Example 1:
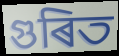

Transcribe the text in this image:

গুৰিত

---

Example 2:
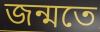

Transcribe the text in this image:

জন্মতে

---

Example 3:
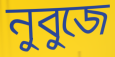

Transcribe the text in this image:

নুবুজে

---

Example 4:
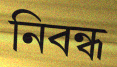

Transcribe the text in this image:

নিবন্ধ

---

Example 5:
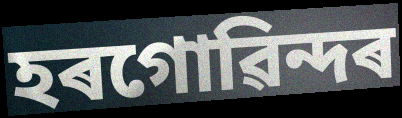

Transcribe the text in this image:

হৰগোৱিন্দৰ